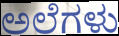
ಅಲೆಗಳು